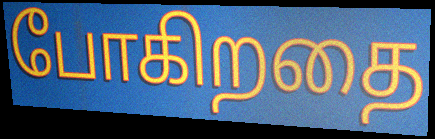
போகிறதை